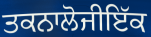
ਤਕਨਾਲੋਜੀਇੱਕ